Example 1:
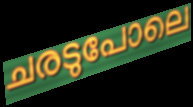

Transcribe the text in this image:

ചരടുപോലെ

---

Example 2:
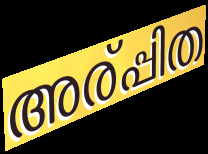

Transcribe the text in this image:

അര്പ്പിത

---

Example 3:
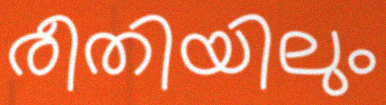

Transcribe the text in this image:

രീതിയിലും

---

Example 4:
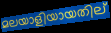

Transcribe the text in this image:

മലയാളിയായതില്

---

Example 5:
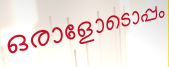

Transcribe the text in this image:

ഒരാളോടൊപ്പം